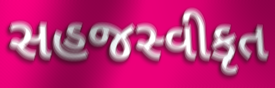
સહજસ્વીકૃત